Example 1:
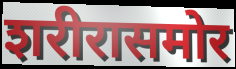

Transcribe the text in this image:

शरीरासमोर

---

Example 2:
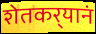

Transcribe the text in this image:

शेतकर्‍यानं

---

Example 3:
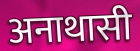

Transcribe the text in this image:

अनाथासी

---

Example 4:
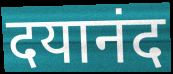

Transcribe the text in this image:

दयानंद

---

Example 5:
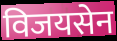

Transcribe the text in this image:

विजयसेन